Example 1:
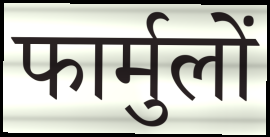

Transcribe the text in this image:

फार्मुलों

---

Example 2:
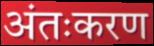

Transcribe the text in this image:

अंतःकरण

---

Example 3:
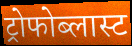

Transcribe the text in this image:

ट्रोफोब्लास्ट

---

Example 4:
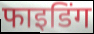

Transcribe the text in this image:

फाइडिंग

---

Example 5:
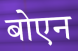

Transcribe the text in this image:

बोएन